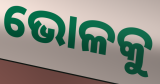
ଭୋଳକୁ